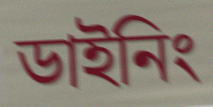
ডাইনিং